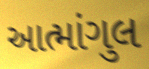
આત્માંગુલ